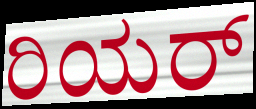
ರಿಯರ್